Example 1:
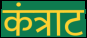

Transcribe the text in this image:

कंत्राट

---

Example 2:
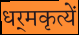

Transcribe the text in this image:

धर्मकृत्यें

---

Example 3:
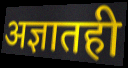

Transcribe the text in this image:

अज्ञातही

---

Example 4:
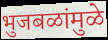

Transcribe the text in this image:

भुजबळांमुळे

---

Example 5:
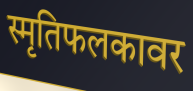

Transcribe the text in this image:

स्मृतिफलकावर